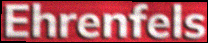
Ehrenfels